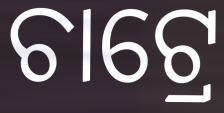
ଚାଟ୍ରେ